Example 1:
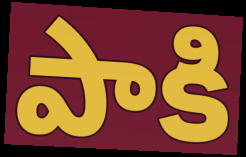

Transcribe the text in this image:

పాకి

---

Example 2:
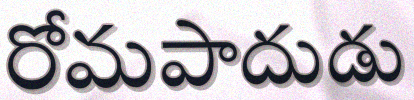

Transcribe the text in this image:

రోమపాదుడు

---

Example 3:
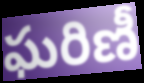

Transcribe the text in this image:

ఘరిణీ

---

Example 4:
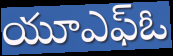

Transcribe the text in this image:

యూఎఫ్ఓ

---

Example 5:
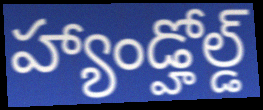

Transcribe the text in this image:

హ్యాండ్హోల్డ్